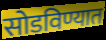
सोडविण्यात